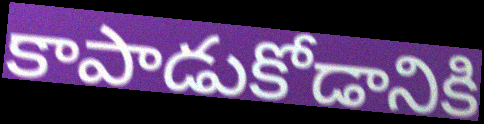
కాపాడుకోడానికి